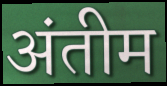
अंतीम